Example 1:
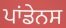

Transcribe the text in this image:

ਪਾਂਡੇਨਸ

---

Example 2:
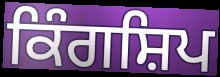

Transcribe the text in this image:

ਕਿੰਗਸ਼ਿਪ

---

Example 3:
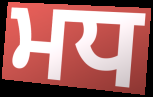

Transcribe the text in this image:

ਮਧ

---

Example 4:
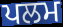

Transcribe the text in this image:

ਪਲਮ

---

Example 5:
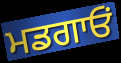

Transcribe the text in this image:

ਮਡਗਾਓਂ